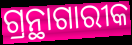
ଗ୍ରନ୍ଥାଗାରୀକ